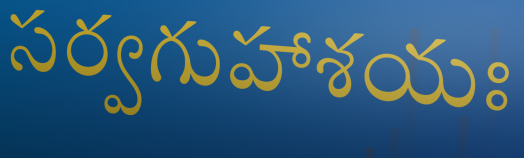
సర్వగుహాశయః